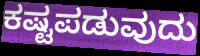
ಕಷ್ಟಪಡುವುದು